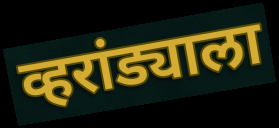
व्हरांड्याला